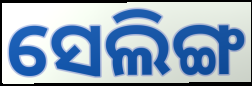
ସେଲିଙ୍ଗ